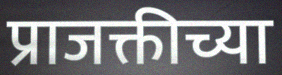
प्राजक्तीच्या